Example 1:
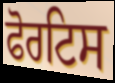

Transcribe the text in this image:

ਫੋਰਟਿਸ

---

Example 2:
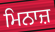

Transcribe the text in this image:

ਮਿਨਾਜ਼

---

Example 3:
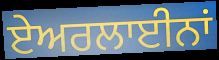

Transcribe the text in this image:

ਏਅਰਲਾਈਨਾਂ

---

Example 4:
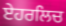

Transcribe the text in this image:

ਏਹਰਲਿਚ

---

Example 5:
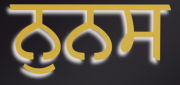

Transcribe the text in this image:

ਨੁਨਸ